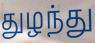
துழந்து